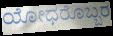
ಯೋಧರೊಬ್ಬರ